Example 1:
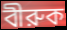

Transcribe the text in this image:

বীৰুক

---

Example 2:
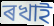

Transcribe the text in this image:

ৰখাই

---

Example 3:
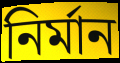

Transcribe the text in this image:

নিৰ্মান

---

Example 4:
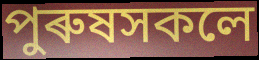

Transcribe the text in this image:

পুৰুষসকলে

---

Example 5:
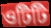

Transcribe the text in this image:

ওটিটি